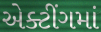
એક્ટીંગમાં